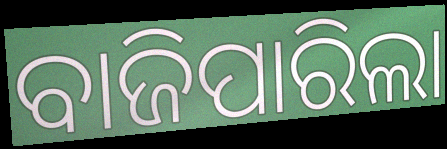
ବାଜିପାରିଲା